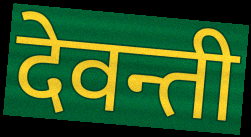
देवन्ती